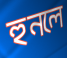
হুনলে